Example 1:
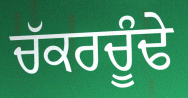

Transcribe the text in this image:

ਚੱਕਰਚੂੰਢੇ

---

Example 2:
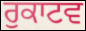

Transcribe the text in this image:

ਰੁਕਾਟਵ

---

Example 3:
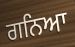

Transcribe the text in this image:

ਗਨਿਆ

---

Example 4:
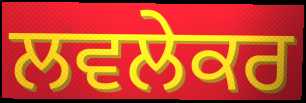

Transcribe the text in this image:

ਲਵਲੇਕਰ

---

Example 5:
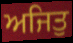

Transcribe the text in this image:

ਅਜਿਤੁ